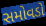
સમોવડો